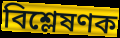
বিশ্লেষণক